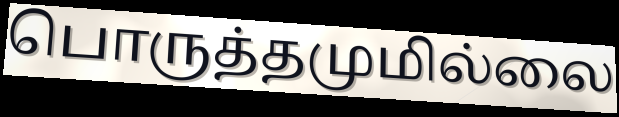
பொருத்தமுமில்லை